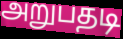
அறுபதடி